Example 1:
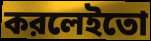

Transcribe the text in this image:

করলেইতো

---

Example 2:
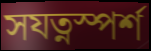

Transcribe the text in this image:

সযত্নস্পর্শ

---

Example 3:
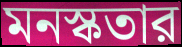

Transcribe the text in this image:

মনস্কতার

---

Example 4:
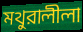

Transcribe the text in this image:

মথুরালীলা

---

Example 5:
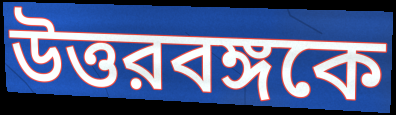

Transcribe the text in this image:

উত্তরবঙ্গকে